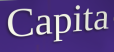
Capita